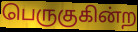
பெருகுகின்ற